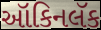
ઑકિનલૅક